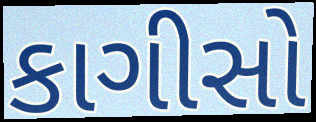
કાગીસો